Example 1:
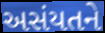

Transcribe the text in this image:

અસંયતને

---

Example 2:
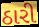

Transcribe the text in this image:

ઠારી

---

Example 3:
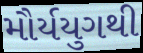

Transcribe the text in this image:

મૌર્યયુગથી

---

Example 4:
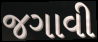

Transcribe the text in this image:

જગાવી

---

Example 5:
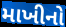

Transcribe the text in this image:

માખીનો